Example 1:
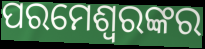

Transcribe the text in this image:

ପରମେଶ୍ୱରଙ୍କର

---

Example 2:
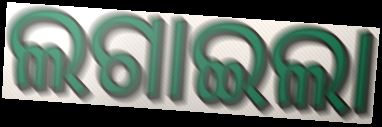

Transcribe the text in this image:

ଲଗାଇଲା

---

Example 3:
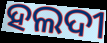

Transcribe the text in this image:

ହଲଦୀ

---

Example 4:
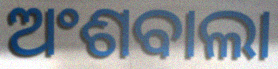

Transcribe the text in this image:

ଅଂଶବାଲା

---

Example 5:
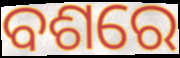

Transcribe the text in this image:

ବଶରେ